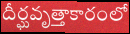
దీర్ఘవృత్తాకారంలో